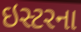
ઇસ્ટરના